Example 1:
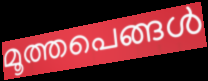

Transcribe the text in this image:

മൂത്തപെങ്ങൾ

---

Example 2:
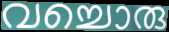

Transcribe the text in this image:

വച്ചൊരു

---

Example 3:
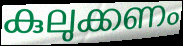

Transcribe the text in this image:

കുലുക്കണം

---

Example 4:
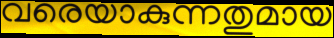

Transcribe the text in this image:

വരെയാകുന്നതുമായ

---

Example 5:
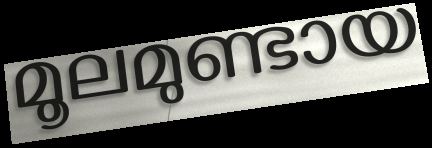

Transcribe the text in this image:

മൂലമുണ്ടായ